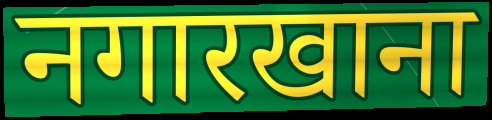
नगारखाना